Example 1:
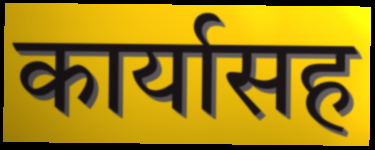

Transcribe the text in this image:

कार्यासह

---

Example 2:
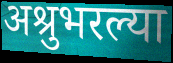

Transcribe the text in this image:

अश्रुभरल्या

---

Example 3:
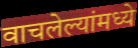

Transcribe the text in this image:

वाचलेल्यांमध्ये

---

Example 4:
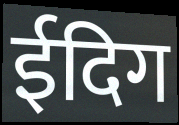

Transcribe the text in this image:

ईदिग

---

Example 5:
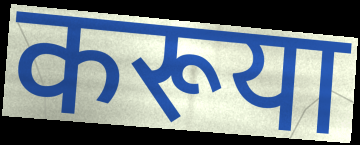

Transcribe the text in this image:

करूया